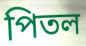
পিতল